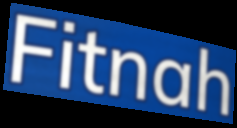
Fitnah